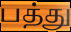
பத்து